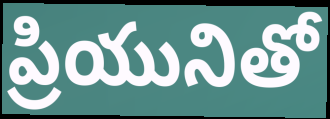
ప్రియునితో